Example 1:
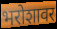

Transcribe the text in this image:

भरोशावर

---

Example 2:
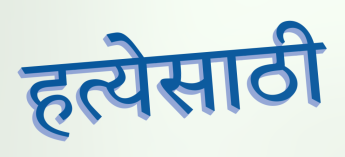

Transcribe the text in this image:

हत्येसाठी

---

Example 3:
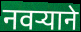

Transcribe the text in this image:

नवऱ्याने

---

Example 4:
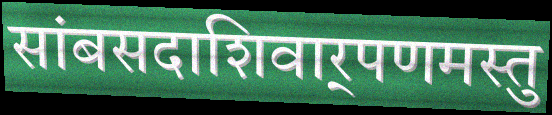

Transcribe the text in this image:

सांबसदाशिवार्पणमस्तु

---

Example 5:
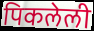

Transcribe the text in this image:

पिकलेली